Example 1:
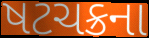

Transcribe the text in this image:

ષટચક્રના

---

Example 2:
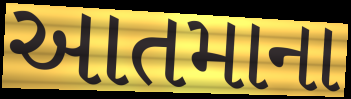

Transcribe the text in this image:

આતમાના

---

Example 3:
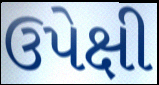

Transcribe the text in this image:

ઉપેક્ષી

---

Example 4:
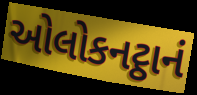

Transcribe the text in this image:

ઓલોકનટ્ઠાનં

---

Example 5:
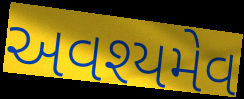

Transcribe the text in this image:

અવશ્યમેવ